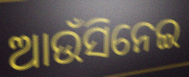
ଆଉଁସିନେଇ